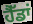
ਹੈੱਡਾਂ